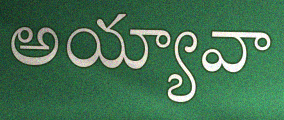
అయ్యావా